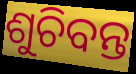
ଶୁଚିବନ୍ତ